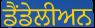
ਡੈਂਡੇਲੀਅਨ